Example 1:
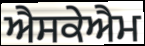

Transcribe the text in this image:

ਐਸਕੇਐਮ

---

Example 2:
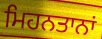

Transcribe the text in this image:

ਮਿਹਨਤਾਨਾਂ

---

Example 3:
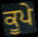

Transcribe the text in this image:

ਕੂਪੇ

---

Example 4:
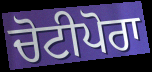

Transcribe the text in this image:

ਚੋਟੀਪੋਰਾ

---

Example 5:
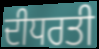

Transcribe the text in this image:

ਦੀਧਰਤੀ